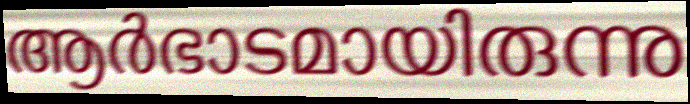
ആർഭാടമായിരുന്നു